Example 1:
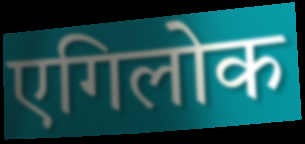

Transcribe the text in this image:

एगिलोक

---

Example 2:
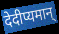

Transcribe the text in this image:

देदीप्यमान्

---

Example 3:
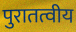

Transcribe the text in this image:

पुरातत्वीय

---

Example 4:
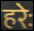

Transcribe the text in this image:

हरेः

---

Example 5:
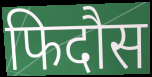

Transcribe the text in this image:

फिदौस